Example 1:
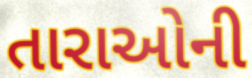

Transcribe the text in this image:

તારાઓની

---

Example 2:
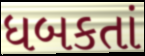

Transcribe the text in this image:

ધબકતાં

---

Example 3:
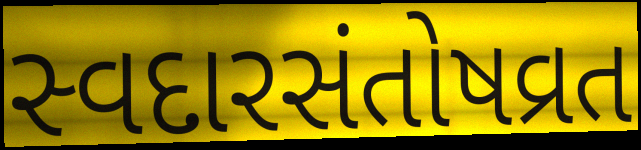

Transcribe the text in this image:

સ્વદારસંતોષવ્રત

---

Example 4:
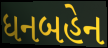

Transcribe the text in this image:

ધનબહેન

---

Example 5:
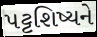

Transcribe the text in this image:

પટ્ટશિષ્યને